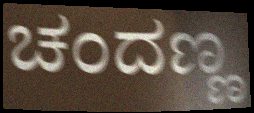
ಚಂದಣ್ಣ